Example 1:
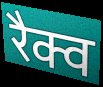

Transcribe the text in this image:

रैक्व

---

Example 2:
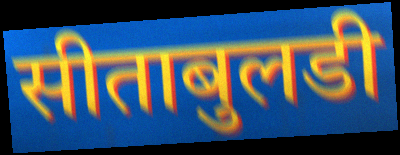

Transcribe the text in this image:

सीताबुलडी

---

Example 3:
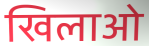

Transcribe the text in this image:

खिलाओ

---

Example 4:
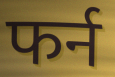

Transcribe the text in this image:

फर्न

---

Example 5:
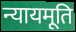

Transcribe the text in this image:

न्यायमूति